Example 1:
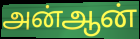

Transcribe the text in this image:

அன்ஆன்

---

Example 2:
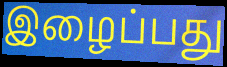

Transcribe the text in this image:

இழைப்பது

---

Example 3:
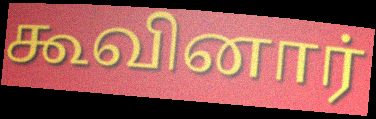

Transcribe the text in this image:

கூவினார்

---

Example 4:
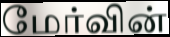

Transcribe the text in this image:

மேர்வின்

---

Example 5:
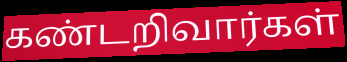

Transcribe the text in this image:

கண்டறிவார்கள்